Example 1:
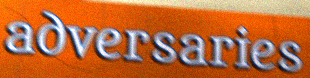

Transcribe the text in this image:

adversaries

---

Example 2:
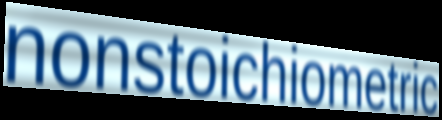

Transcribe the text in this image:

nonstoichiometric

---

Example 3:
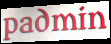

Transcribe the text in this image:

padmin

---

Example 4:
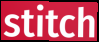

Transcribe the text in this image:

stitch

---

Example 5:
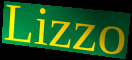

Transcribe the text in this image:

Lizzo